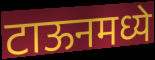
टाऊनमध्ये